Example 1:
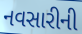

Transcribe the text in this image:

નવસારીની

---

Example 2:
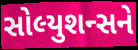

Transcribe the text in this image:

સોલ્યુશન્સને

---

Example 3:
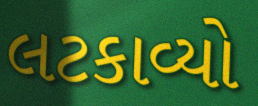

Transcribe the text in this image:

લટકાવ્યો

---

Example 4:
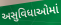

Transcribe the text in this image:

અસુવિધાઓમાં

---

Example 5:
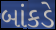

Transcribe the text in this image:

બાંકડે